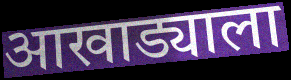
आखाड्याला